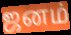
ஜனம்